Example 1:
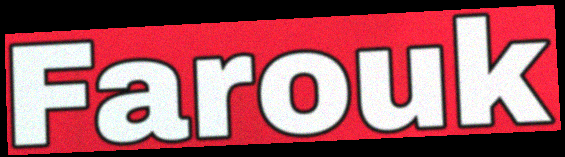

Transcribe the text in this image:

Farouk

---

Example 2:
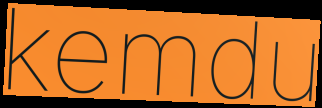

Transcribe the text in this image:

kemdu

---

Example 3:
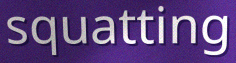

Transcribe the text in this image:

squatting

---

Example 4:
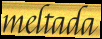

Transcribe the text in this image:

meltada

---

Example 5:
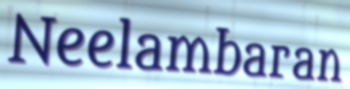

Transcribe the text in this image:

Neelambaran